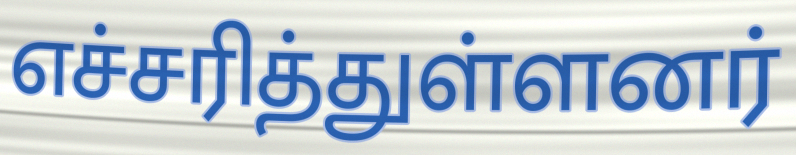
எச்சரித்துள்ளனர்